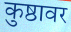
कुष्ठावर